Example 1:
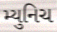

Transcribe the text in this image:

મ્યુનિચ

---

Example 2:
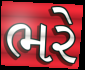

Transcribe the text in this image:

ભરે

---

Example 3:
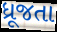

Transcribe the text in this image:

ધ્રૂજતા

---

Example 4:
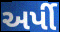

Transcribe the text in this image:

અર્પી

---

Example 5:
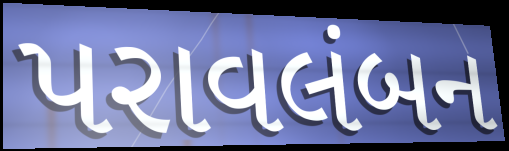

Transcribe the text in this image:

પરાવલંબન